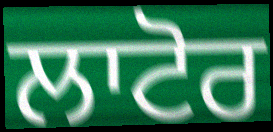
ਲਾਟੋਰ